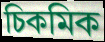
চিকমিক